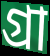
গ্রা